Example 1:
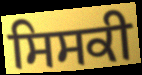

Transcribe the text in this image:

ਸਿਸਕੀ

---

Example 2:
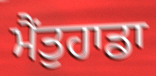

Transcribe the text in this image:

ਮੈਂਤੁਹਾਡਾ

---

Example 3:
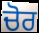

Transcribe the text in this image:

ਚੋਰ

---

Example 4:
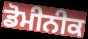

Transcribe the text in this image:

ਡੋਮੀਨੀਕ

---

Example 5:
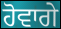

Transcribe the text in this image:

ਹੋਵਾਗੇ